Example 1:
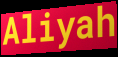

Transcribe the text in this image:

Aliyah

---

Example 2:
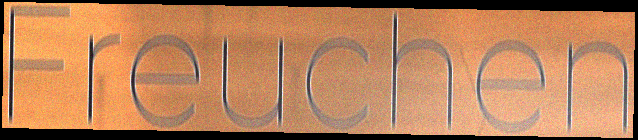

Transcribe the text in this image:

Freuchen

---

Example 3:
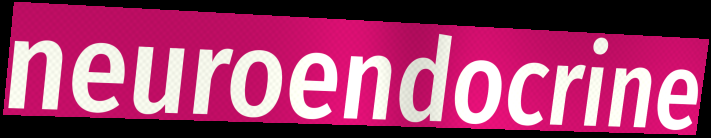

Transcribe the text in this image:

neuroendocrine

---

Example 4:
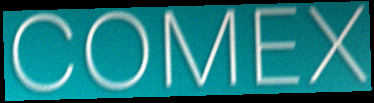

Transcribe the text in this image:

COMEX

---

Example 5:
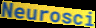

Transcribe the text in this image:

Neurosci